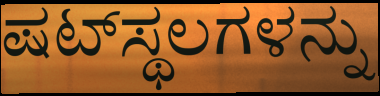
ಷಟ್‌ಸ್ಥಲಗಳನ್ನು